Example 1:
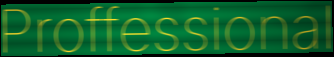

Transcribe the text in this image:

Proffessional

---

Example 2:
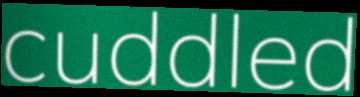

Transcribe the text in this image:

cuddled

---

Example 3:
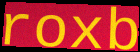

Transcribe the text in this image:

roxb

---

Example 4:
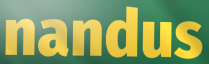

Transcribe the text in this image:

nandus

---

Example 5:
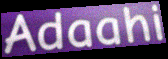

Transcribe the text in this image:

Adaahi